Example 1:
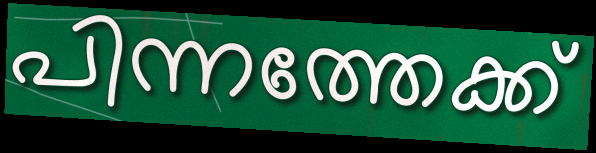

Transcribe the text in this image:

പിന്നത്തേക്ക്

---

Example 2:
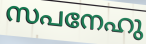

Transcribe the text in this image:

സപനേഹു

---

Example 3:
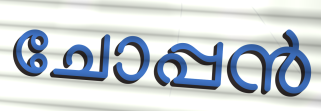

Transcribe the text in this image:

ചോപ്പൻ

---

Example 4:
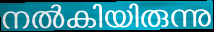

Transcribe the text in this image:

നൽകിയിരുന്നു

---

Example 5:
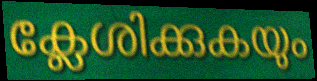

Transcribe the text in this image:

ക്ലേശിക്കുകയും